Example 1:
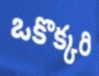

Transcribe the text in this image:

ఒకొక్కరి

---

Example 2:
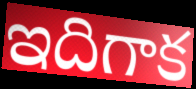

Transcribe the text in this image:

ఇదిగాక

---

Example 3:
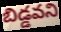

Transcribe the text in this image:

బిడ్డవని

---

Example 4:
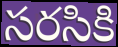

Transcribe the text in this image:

సరసికి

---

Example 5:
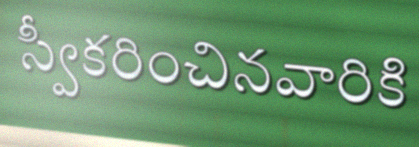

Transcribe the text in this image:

స్వీకరించినవారికి